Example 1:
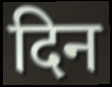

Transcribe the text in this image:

दिन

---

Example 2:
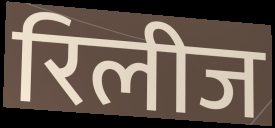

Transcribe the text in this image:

रिलीज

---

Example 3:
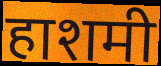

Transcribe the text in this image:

हाशमी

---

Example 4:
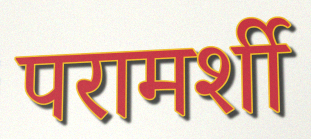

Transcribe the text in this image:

परामर्शी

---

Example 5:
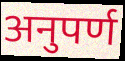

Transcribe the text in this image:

अनुपर्ण